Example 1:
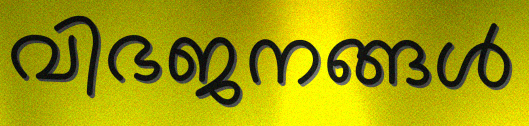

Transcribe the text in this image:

വിഭജനങ്ങൾ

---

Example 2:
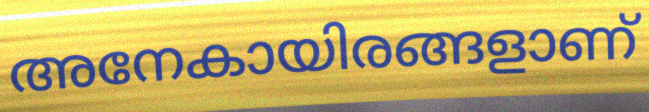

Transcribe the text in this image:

അനേകായിരങ്ങളാണ്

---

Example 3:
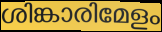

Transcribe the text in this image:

ശിങ്കാരിമേളം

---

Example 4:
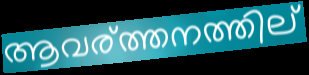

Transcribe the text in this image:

ആവര്ത്തനത്തില്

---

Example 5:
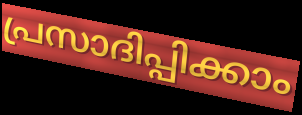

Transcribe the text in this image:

പ്രസാദിപ്പിക്കാം